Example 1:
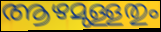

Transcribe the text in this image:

ആഴമുള്ളതും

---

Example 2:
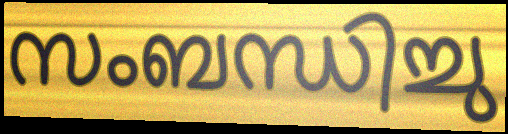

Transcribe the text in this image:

സംബന്ധിച്ചു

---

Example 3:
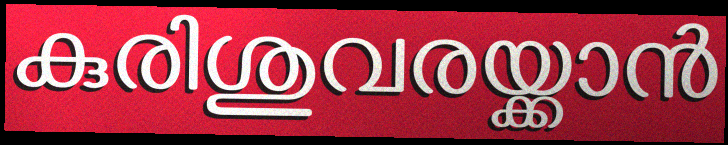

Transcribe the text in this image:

കുരിശുവരയ്ക്കാൻ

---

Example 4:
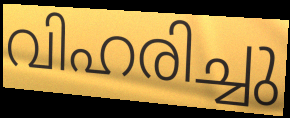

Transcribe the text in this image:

വിഹരിച്ചു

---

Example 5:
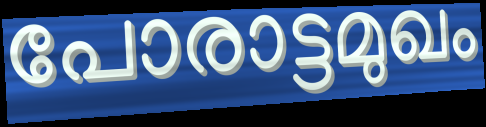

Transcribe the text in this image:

പോരാട്ടമുഖം